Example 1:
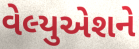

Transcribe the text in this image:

વેલ્યુએશને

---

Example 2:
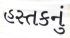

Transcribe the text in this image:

હસ્તકનું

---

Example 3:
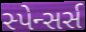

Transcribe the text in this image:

સ્પેન્સર્સ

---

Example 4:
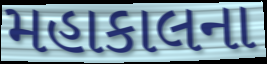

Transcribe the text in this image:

મહાકાલના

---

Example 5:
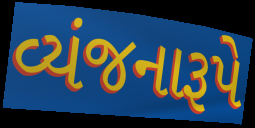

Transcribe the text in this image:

વ્યંજનારૂપે